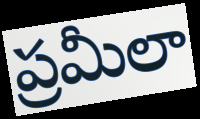
ప్రమీలా